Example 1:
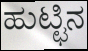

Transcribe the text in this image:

ಹುಟ್ಟಿನ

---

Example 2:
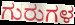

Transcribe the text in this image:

ಗುರುಗಳ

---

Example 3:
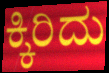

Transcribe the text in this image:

ಕ್ಕಿರಿದು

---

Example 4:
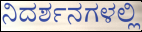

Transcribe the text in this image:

ನಿದರ್ಶನಗಳಲ್ಲಿ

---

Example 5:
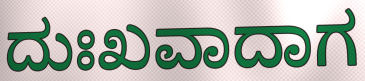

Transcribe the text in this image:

ದುಃಖವಾದಾಗ